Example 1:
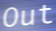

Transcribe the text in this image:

Out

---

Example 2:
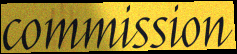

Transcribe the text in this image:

commission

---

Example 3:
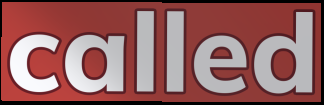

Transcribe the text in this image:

called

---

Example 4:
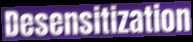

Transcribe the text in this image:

Desensitization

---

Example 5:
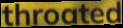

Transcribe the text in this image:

throated